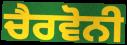
ਚੈਰਵੋਨੀ